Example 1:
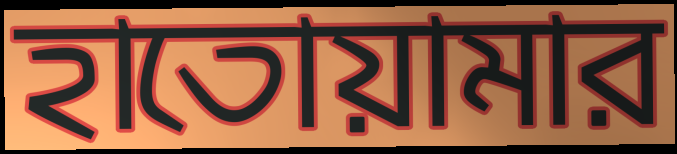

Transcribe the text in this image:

হাতোয়ামার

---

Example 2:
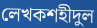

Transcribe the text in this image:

লেখকশহীদুল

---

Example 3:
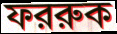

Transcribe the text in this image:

ফররুক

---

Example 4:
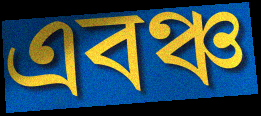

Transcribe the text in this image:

এবঞ্চ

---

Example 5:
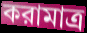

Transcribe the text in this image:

করামাত্র